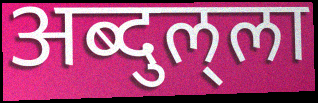
अब्दुल्ला